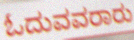
ಓದುವವರಾರು